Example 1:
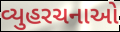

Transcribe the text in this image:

વ્યુહરચનાઓ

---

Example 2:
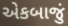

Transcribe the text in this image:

એકબાજું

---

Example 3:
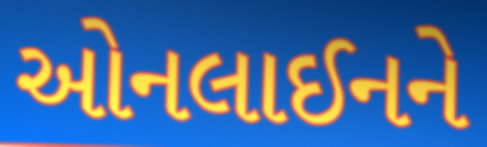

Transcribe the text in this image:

ઓનલાઈનને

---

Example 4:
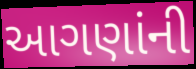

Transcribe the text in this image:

આગણાંની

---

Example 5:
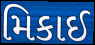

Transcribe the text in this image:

મિકાઈ